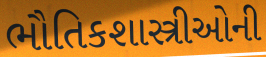
ભૌતિકશાસ્ત્રીઓની